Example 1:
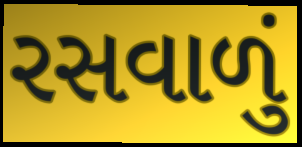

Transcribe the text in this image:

રસવાળું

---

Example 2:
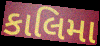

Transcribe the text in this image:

કાલિમા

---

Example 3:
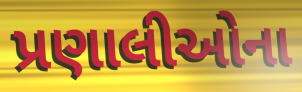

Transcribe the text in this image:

પ્રણાલીઓના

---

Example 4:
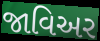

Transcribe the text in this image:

જાવિઅર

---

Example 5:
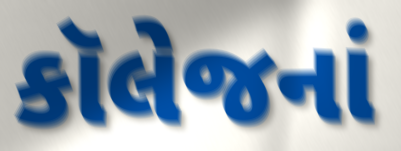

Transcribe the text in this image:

કૉલેજનાં